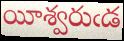
యీశ్వరుఁడ